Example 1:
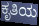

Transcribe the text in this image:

ಕೃತಿಯ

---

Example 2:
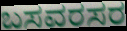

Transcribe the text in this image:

ಬಸವರಸರ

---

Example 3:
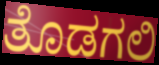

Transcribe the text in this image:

ತೊಡಗಲಿ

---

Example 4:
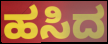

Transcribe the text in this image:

ಹಸಿದ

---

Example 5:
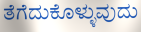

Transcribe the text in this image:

ತೆಗೆದುಕೊಳ್ಳುವುದು